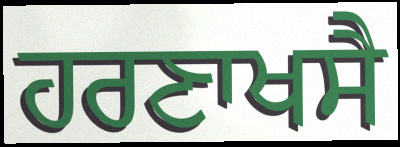
ਹਰਣਾਖਸੈ